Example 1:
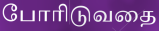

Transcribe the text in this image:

போரிடுவதை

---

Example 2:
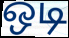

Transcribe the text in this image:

ஒடி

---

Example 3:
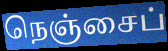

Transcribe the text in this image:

நெஞ்சைப்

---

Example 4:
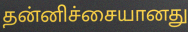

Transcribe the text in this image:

தன்னிச்சையானது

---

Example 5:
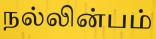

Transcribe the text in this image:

நல்லின்பம்